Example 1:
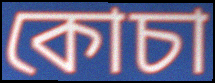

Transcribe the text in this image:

কোচা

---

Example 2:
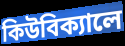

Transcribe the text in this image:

কিউবিক্যালে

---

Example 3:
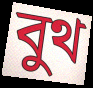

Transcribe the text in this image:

বুথ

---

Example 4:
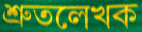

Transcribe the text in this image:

শ্রুতলেখক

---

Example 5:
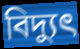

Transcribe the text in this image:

বিদ্যুৎ